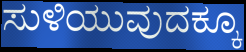
ಸುಳಿಯುವುದಕ್ಕೂ